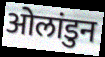
ओलांडुन